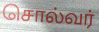
சொல்வர்